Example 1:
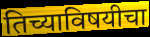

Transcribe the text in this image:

तिच्याविषयीचा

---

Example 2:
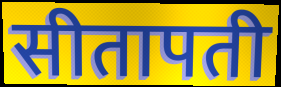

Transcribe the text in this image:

सीतापती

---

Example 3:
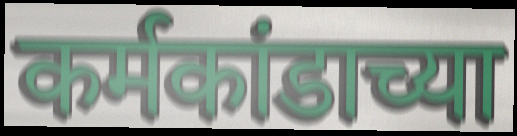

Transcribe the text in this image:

कर्मकांडाच्या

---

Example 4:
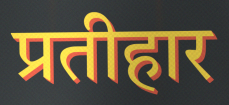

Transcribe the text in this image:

प्रतीहार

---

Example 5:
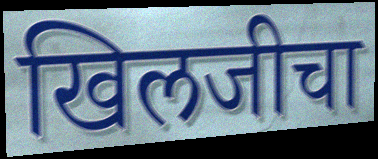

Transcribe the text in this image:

खिलजीचा